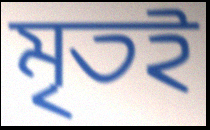
মৃতই